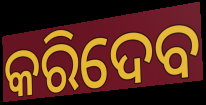
କରିଦେବ